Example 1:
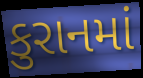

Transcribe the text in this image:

કુરાનમાં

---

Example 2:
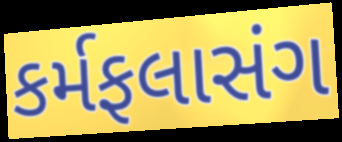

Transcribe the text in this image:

કર્મફલાસંગ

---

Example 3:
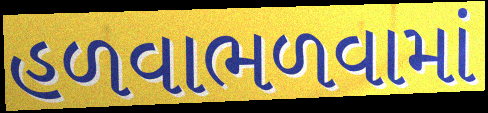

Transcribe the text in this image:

હળવાભળવામાં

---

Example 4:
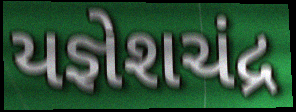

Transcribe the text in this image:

યજ્ઞેશચંદ્ર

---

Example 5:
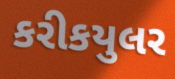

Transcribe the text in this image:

કરીકયુલર